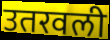
उतरवली